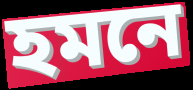
হমনে